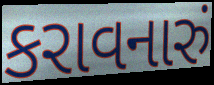
કરાવનારું